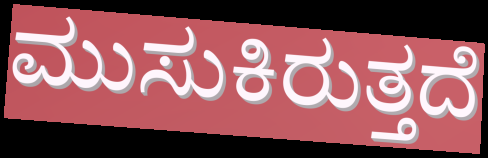
ಮುಸುಕಿರುತ್ತದೆ